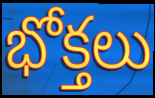
భోక్తలు